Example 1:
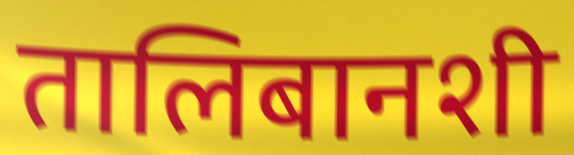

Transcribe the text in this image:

तालिबानशी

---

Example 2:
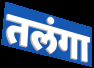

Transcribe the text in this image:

तलंगा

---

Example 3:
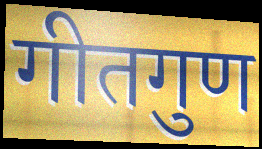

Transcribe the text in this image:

गीतगुण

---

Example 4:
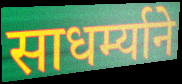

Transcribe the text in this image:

साधर्म्याने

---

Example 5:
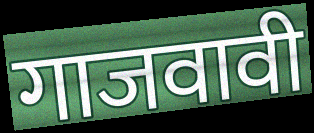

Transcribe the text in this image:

गाजवावी